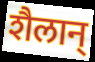
शैलान्